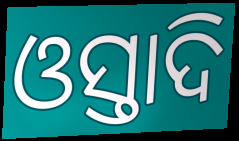
ଓସ୍ତାଦି